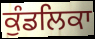
ਕੁੰਡਲਿਕਾ